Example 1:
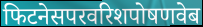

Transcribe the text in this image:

फिटनेसपरवरिशपोषणवेब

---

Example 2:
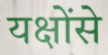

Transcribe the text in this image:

यक्षोंसे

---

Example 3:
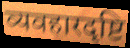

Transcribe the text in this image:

व्यवहारदृष्टि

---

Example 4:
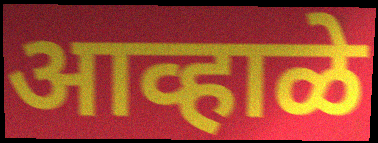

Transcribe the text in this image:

आव्हाळे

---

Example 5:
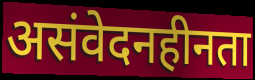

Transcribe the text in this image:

असंवेदनहीनता